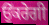
ਉੱਕਰੇਗੀ